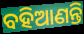
ବହିଆଣନ୍ତି